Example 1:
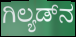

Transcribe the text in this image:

ಗಿಲ್ಯಡ್‌ನ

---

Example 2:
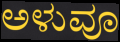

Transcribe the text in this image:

ಅಳುವೂ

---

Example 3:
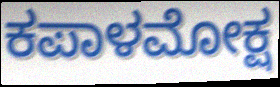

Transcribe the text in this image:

ಕಪಾಳಮೋಕ್ಷ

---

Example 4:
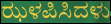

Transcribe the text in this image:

ಝಳಪಿಸಿದಳು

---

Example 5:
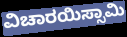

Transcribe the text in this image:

ವಿಚಾರಯಿಸ್ಸಾಮಿ